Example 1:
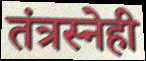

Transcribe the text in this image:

तंत्रस्नेही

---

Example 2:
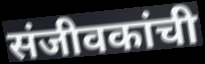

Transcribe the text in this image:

संजीवकांची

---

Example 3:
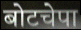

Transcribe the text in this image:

बोटचेपा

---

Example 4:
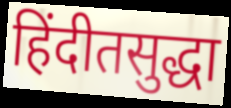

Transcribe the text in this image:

हिंदीतसुद्धा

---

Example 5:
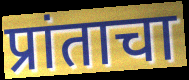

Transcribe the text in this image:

प्रांताचा